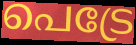
പെട്രേ